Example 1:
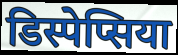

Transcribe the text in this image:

डिस्पेप्सिया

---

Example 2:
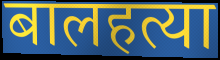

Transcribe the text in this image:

बालहत्या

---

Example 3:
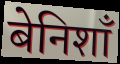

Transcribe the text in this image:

बेनिशाँ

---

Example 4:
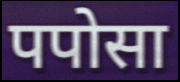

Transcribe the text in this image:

पपोसा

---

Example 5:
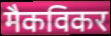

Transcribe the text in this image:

मैकविकर